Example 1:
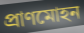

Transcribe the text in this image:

প্রাণমোহন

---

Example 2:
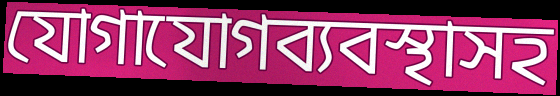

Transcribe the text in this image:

যোগাযোগব্যবস্থাসহ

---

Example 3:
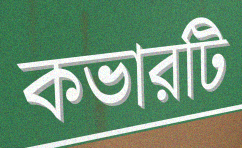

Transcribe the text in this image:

কভারটি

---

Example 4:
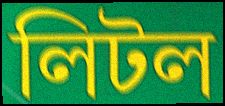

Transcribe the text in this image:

লিটল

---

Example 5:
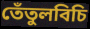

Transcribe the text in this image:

তেঁতুলবিচি